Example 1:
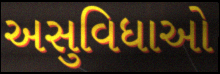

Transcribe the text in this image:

અસુવિધાઓ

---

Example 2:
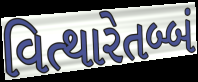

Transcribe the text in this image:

વિત્થારેતબ્બં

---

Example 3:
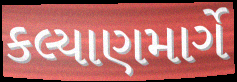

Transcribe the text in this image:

કલ્યાણમાર્ગે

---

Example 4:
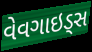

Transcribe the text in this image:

વેવગાઇડ્સ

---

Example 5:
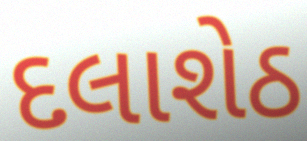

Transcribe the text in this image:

દલાશેઠ